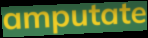
amputate